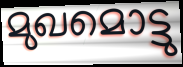
മുഖമൊട്ടു